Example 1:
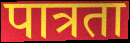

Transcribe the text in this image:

पात्रता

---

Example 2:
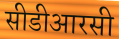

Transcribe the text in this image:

सीडीआरसी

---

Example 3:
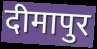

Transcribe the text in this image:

दीमापुर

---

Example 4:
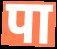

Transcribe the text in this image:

पा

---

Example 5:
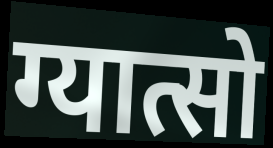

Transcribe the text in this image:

ग्यात्सो